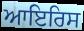
ਆਇਰਿਸ